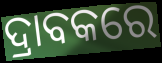
ଦ୍ରାବକରେ